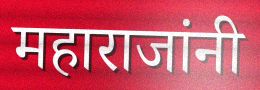
महाराजांनी